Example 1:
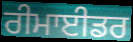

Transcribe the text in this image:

ਰੀਮਾਈਡਰ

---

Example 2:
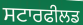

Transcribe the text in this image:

ਸਟਾਰਫੀਲਡ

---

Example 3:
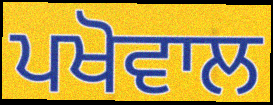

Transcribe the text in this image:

ਪਖੋਵਾਲ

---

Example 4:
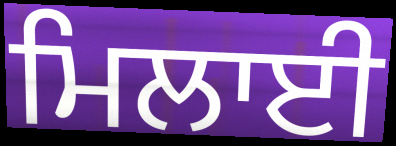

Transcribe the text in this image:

ਮਿਲਾਈ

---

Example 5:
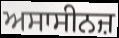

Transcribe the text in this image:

ਅਸਾਸੀਨਜ਼